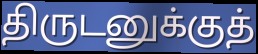
திருடனுக்குத்